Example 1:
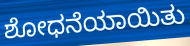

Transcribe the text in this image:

ಶೋಧನೆಯಾಯಿತು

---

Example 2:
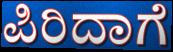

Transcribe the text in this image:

ಪಿರಿದಾಗೆ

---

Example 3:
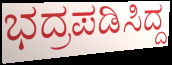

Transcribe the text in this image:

ಭದ್ರಪಡಿಸಿದ್ದ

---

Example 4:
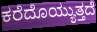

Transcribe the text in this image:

ಕರೆದೊಯ್ಯುತ್ತದೆ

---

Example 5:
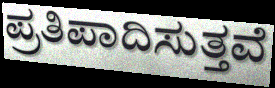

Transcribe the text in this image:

ಪ್ರತಿಪಾದಿಸುತ್ತವೆ